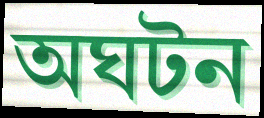
অঘটন